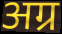
अग्र